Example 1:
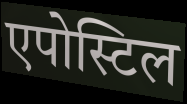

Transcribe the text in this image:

एपोस्टिल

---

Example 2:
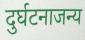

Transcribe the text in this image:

दुर्घटनाजन्य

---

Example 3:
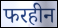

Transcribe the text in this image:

फरहीन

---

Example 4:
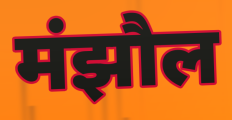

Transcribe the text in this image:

मंझौल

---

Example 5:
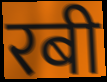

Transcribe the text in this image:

रबी